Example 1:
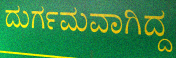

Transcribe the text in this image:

ದುರ್ಗಮವಾಗಿದ್ದ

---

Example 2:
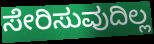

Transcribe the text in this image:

ಸೇರಿಸುವುದಿಲ್ಲ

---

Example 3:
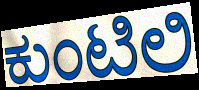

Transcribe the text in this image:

ಕುಂಟಿಲಿ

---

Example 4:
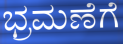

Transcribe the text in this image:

ಭ್ರಮಣೆಗೆ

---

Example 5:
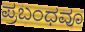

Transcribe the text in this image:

ಪ್ರಬಂಧವೂ